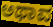
ಅಥಾವ